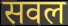
सवल